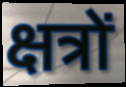
क्षत्रों